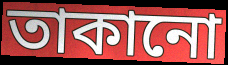
তাকানো